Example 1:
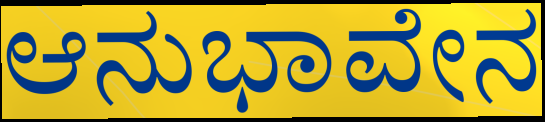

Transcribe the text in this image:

ಆನುಭಾವೇನ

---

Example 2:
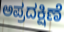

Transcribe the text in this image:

ಅಪ್ರದಕ್ಷಿಣೆ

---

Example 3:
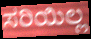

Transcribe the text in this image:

ಸರಿಯಿಲ್ಲ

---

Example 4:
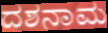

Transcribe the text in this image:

ದಶನಾಮ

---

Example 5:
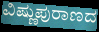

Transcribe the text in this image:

ವಿಷ್ಣುಪುರಾಣದ